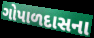
ગોપાળદાસના